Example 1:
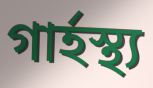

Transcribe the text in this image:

গার্হস্থ্য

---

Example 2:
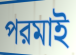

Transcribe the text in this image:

পরমাই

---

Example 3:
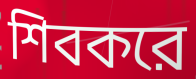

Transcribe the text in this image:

শিবকরে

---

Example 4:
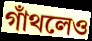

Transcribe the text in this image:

গাঁথলেও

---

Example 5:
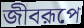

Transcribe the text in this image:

জীবরূপে